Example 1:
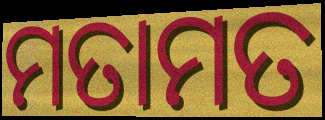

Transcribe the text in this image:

ମତାମତ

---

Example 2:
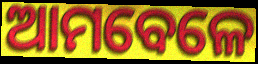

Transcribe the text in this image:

ଆମବେଳେ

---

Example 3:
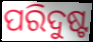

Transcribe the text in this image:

ପରିଦୁଷ୍ଟ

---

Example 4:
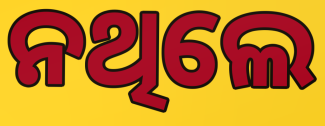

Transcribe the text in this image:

ନଥିଲେ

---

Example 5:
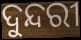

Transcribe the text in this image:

ଦୁନ୍ଦରୀ